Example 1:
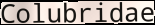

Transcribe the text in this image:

Colubridae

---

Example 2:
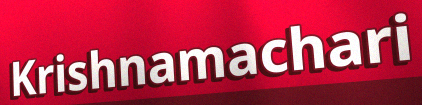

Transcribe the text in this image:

Krishnamachari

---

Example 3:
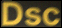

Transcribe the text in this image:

Dsc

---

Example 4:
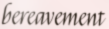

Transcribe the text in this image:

bereavement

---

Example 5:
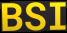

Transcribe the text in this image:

BSI